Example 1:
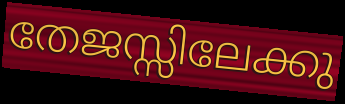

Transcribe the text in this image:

തേജസ്സിലേക്കു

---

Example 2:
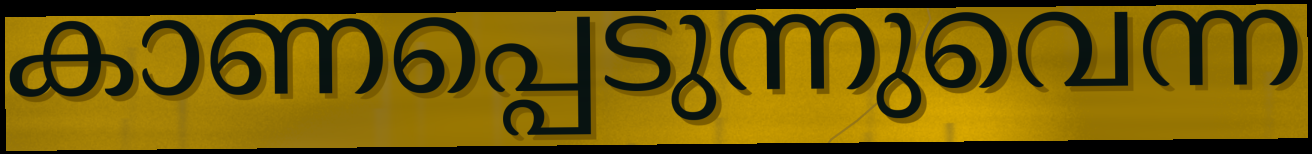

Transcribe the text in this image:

കാണപ്പെടുന്നുവെന്ന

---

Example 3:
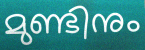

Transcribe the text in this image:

മുണ്ടിനും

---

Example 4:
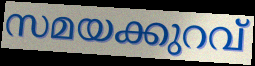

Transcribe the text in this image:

സമയക്കുറവ്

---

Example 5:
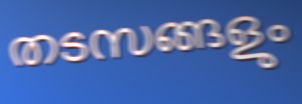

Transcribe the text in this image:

തടസങ്ങളും